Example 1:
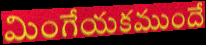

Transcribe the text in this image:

మింగేయకముందే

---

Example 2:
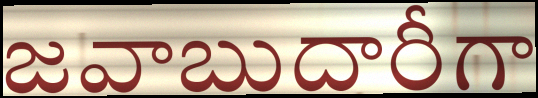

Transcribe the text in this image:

జవాబుదారీగా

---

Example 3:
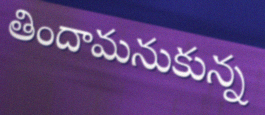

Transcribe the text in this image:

తిందామనుకున్న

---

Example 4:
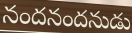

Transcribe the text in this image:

నందనందనుడు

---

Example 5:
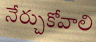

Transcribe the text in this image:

నేర్చుకోవాలి